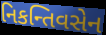
નિકન્તિવસેન